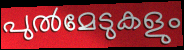
പുൽമേടുകളും